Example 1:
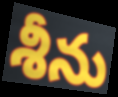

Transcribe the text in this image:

శీను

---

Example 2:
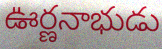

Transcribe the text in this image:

ఊర్ణనాభుడు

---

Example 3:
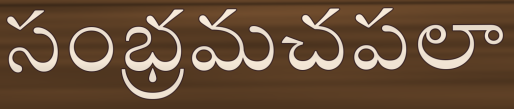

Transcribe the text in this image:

సంభ్రమచపలా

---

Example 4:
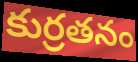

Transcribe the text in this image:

కుర్రతనం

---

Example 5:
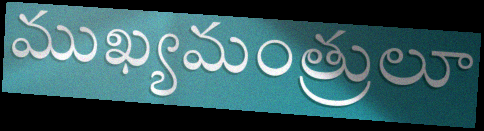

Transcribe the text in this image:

ముఖ్యమంత్రులూ